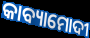
କାବ୍ୟାମୋଦୀ